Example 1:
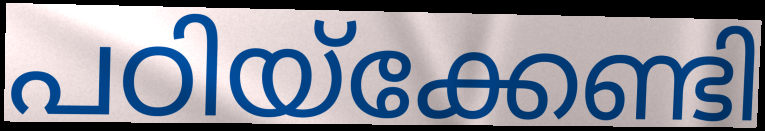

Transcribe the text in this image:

പഠിയ്ക്കേണ്ടി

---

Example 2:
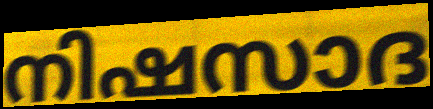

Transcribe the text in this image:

നിഷസാദ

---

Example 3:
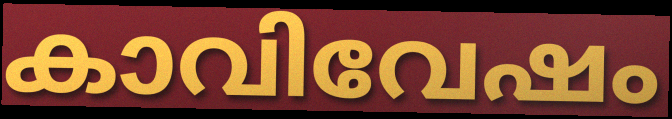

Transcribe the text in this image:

കാവിവേഷം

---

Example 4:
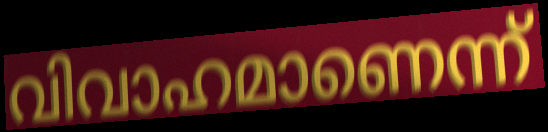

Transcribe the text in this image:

വിവാഹമാണെന്ന്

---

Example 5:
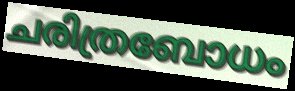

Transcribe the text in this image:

ചരിത്രബോധം